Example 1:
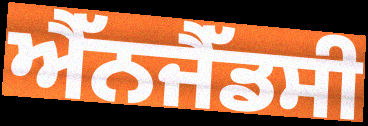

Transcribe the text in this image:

ਐੱਨਜੈੱਡਸੀ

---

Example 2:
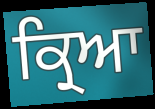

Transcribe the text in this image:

ਕ੍ਰਿਆ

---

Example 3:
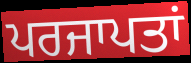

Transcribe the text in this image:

ਪਰਜਾਪਤਾਂ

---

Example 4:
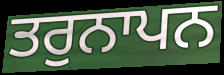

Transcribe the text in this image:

ਤਰੁਨਾਪਨ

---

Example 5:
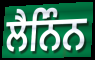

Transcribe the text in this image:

ਲੈਨਿੰਨ